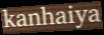
kanhaiya